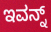
ಇವನ್ನ್